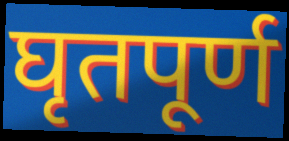
घृतपूर्ण